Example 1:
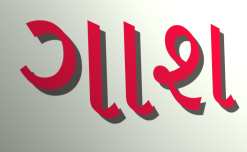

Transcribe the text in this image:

ગાશ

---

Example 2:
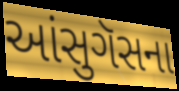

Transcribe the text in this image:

આંસુગૅસના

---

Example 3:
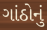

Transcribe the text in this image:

ગાંઠોનું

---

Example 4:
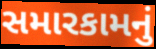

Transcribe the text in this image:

સમારકામનું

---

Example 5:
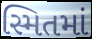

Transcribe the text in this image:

સ્મિતમાં